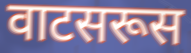
वाटसरूस